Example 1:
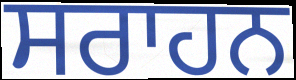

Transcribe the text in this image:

ਸਰਾਹਨ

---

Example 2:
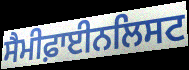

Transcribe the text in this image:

ਸੈਮੀਫ਼ਾਈਨਲਿਸਟ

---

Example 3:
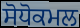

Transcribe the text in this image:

ਸੋਧੋਕਮਲ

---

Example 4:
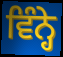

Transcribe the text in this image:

ਵਿੰਨ੍ਹੇ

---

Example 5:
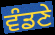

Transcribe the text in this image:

ਵੰਡਣੇ